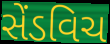
સેંડવિચ